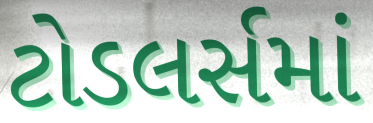
ટોડલર્સમાં